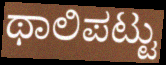
ಥಾಲಿಪಟ್ಟು